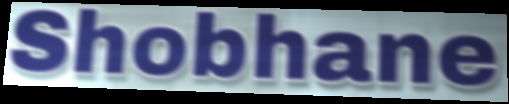
Shobhane